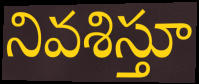
నివశిస్తూ